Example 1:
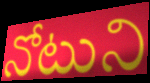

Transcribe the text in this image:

నోటుని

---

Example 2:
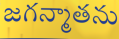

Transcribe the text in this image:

జగన్మాతను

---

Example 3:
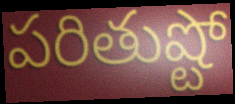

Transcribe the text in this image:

పరితుష్టో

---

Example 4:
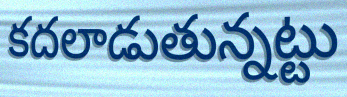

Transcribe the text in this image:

కదలాడుతున్నట్టు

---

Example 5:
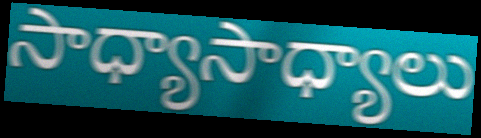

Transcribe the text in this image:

సాధ్యాసాధ్యాలు